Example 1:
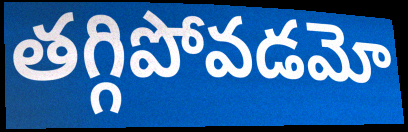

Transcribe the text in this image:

తగ్గిపోవడమో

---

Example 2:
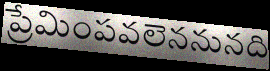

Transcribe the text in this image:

ప్రేమింపవలెననునది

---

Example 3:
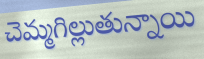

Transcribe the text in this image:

చెమ్మగిల్లుతున్నాయి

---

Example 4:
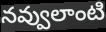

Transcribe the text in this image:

నవ్వులాంటి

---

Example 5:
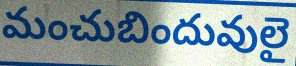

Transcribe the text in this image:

మంచుబిందువులై